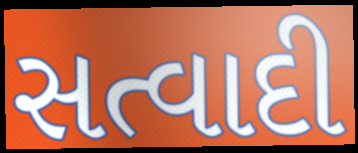
સત્વાદી